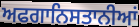
ਅਫਗਾਨਿਸਤਾਨੀਆਂ